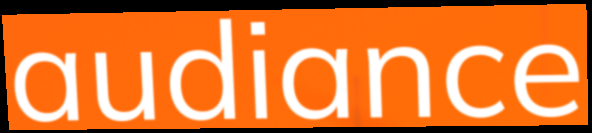
audiance